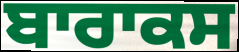
ਬਾਰਾਕਸ